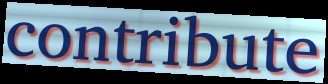
contribute